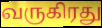
வருகிரது